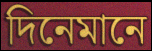
দিনেমানে